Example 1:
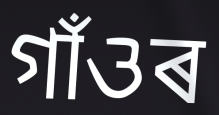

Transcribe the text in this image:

গাঁওৰ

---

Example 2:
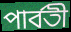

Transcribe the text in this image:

পাৰ্বতী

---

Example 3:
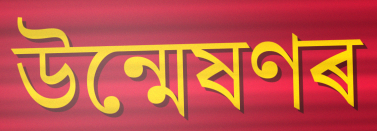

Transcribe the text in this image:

উন্মেষণৰ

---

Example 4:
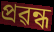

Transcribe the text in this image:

প্ৰৱন্ধ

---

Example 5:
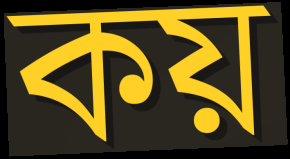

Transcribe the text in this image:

কয়